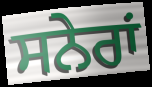
ਸਨੇਰਾਂ